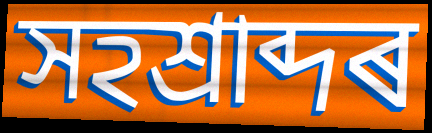
সহশ্ৰাব্দৰ